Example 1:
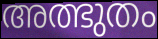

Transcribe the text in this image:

അത്ഭുതം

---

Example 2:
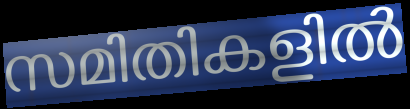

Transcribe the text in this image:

സമിതികളിൽ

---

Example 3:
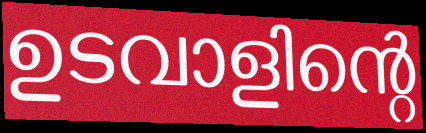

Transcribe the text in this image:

ഉടവാളിന്റെ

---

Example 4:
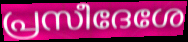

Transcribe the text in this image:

പ്രസീദേശേ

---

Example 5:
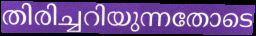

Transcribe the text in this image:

തിരിച്ചറിയുന്നതോടെ